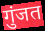
गुंजत